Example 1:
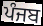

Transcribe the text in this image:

ਪੰਜਬ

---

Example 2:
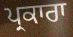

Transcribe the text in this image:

ਪ੍ਰਕਾਰਾ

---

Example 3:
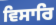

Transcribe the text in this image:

ਵਿਸਾਰਿ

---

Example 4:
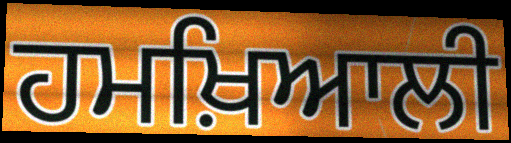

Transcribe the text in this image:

ਹਮਖ਼ਿਆਲੀ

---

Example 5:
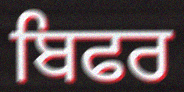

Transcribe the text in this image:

ਬਿਫਰ